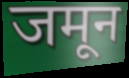
जमून